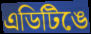
এডিটিঙে